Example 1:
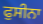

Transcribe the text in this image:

ਫੁਸੀਨਾ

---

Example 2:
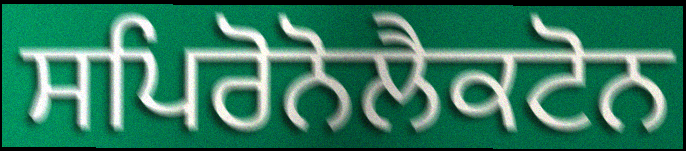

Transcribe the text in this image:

ਸਪਿਰੋਨੋਲੈਕਟੋਨ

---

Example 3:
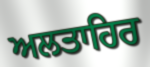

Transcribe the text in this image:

ਅਲਤਾਹਿਰ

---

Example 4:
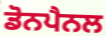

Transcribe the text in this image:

ਡੋਨਪੈਨਲ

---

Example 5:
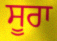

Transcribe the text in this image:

ਸੂਰਾ